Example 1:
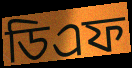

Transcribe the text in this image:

ডিএফ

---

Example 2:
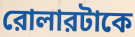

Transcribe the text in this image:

রোলারটাকে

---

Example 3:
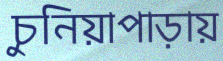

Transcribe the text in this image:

চুনিয়াপাড়ায়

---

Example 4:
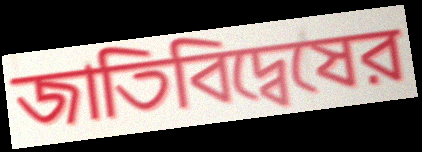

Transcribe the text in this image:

জাতিবিদ্বেষের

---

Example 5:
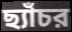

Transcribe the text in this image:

ছ্যাঁচর